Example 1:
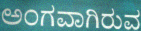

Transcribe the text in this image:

ಅಂಗವಾಗಿರುವ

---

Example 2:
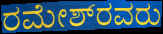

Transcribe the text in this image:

ರಮೇಶ್‌ರವರು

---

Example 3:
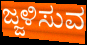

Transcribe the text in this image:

ಜ್ಜಳಿಸುವ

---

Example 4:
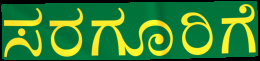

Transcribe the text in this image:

ಸರಗೂರಿಗೆ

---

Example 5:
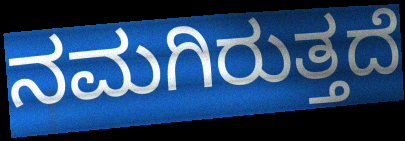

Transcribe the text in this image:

ನಮಗಿರುತ್ತದೆ